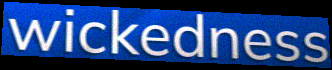
wickedness